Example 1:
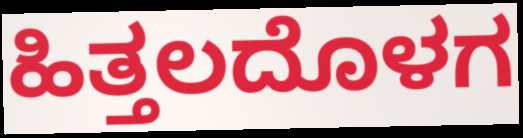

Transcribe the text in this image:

ಹಿತ್ತಲದೊಳಗ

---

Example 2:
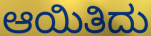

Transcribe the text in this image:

ಆಯಿತಿದು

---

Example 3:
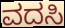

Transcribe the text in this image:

ವದಸಿ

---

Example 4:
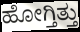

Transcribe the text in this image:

ಹೋಗ್ತಿತ್ತು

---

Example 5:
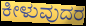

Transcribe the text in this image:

ಕೀಳುವುದರ